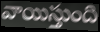
వాయిస్తుంది